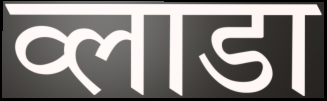
व्लाडा